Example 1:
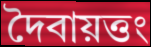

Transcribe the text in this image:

দৈবায়ত্তং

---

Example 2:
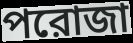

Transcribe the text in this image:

পরোজা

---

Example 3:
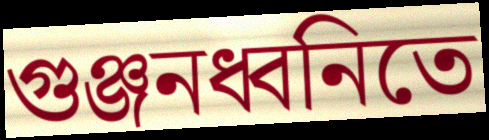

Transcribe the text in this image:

গুঞ্জনধ্বনিতে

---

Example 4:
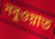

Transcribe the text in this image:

নবুওয়াত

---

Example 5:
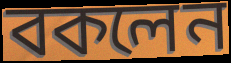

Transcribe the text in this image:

বকলেন